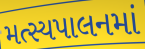
મત્સ્યપાલનમાં